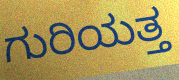
ಗುರಿಯತ್ತ